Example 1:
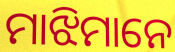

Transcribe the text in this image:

ମାଝିମାନେ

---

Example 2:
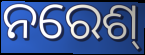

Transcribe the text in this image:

ନରେଶ୍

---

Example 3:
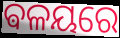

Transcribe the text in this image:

ଵଳୟରେ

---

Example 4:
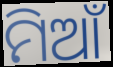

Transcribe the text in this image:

ମିଆଁ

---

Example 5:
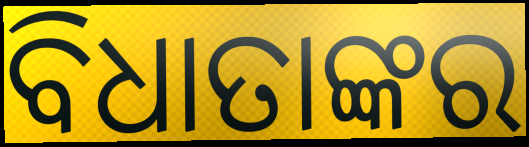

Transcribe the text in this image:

ବିଧାତାଙ୍କର